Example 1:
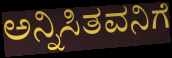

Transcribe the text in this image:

ಅನ್ನಿಸಿತವನಿಗೆ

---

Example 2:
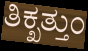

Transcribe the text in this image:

ತಿಕ್ಖತ್ತುಂ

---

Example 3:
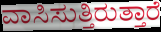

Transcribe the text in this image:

ವಾಸಿಸುತ್ತಿರುತ್ತಾರೆ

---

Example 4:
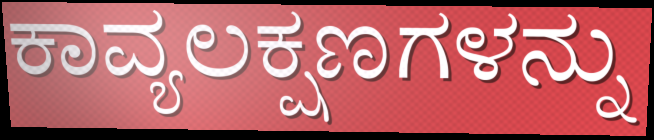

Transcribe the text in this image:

ಕಾವ್ಯಲಕ್ಷಣಗಳನ್ನು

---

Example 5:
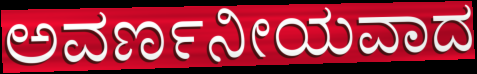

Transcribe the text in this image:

ಅವರ್ಣನೀಯವಾದ